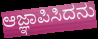
ಆಜ್ಞಾಪಿಸಿದನು